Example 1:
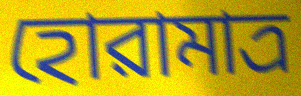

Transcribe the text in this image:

হোৱামাত্ৰ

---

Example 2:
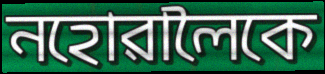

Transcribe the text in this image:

নহোৱালৈকে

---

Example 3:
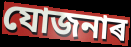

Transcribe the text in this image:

যোজনাৰ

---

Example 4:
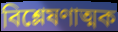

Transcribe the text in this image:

বিশ্লেষণাত্মক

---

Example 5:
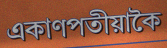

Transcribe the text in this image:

একাণপতীয়াকৈ